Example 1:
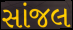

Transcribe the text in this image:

સાંજલ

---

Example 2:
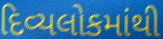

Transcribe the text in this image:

દિવ્યલોકમાંથી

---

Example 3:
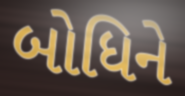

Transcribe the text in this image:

બોધિને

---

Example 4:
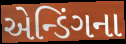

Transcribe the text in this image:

એન્ડિંગના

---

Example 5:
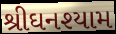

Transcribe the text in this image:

શ્રીઘનશ્યામ